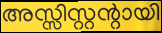
അസ്സിസ്റ്റന്റായി